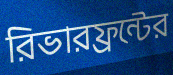
রিভারফ্রন্টের